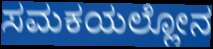
ಸಮಕಯಲ್ಲೋನ